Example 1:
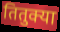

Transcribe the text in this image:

तितुक्या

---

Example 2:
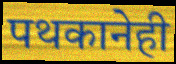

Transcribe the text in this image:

पथकानेही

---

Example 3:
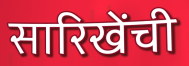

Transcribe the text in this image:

सारिखेंची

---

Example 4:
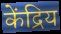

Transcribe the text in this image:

केंद्रिय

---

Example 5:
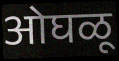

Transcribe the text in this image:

ओघळू